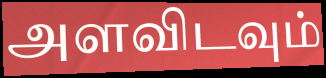
அளவிடவும்